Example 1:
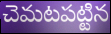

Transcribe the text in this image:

చెమటపట్టిన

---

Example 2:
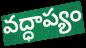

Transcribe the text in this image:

వద్ధాప్యం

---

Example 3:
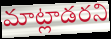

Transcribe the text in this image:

మాట్లాడరని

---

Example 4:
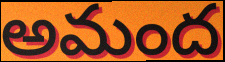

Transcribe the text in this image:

అమంద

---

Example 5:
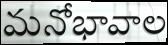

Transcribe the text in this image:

మనోభావాల